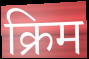
क्रिम